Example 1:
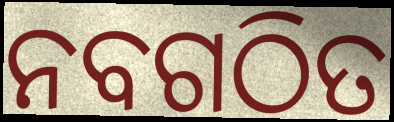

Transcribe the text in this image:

ନବଗଠିତ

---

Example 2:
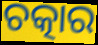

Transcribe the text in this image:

ଚତ୍କାର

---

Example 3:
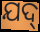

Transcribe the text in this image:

ଯଦ୍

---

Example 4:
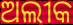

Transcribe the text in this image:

ଅଲୀକ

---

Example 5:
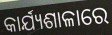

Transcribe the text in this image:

କାର୍ଯ୍ୟଶାଳାରେ